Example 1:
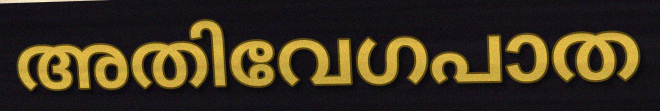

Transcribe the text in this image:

അതിവേഗപാത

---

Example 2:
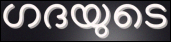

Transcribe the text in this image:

ഗദയുടെ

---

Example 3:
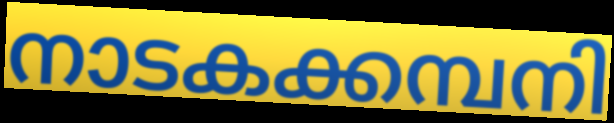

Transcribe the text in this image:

നാടകക്കമ്പനി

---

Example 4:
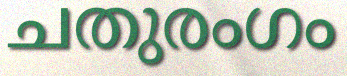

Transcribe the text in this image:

ചതുരംഗം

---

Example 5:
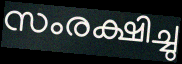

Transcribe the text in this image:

സംരക്ഷിച്ചു